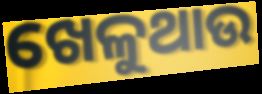
ଖେଳୁଥାଉ